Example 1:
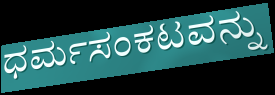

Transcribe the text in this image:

ಧರ್ಮಸಂಕಟವನ್ನು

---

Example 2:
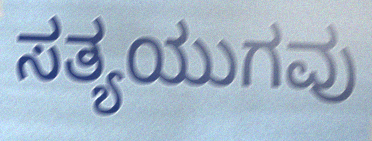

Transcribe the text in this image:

ಸತ್ಯಯುಗವು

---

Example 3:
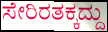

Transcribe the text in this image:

ಸೇರಿರತಕ್ಕದ್ದು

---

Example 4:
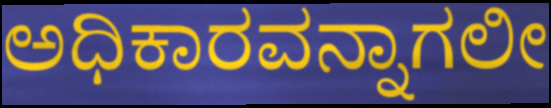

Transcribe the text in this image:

ಅಧಿಕಾರವನ್ನಾಗಲೀ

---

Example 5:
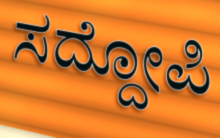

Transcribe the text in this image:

ಸದ್ದೋಪಿ